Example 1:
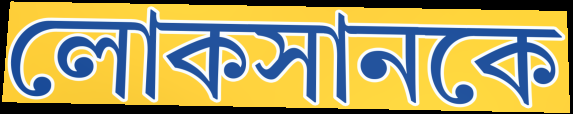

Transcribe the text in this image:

লোকসানকে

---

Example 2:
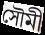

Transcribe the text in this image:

সৌমী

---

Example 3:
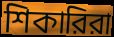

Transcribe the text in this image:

শিকারিরা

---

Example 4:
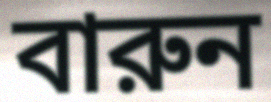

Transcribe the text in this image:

বারুন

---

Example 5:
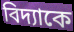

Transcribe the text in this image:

বিদ্যাকে